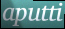
aputti